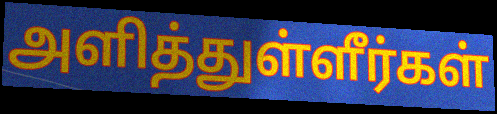
அளித்துள்ளீர்கள்